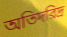
অতিদরিদ্র